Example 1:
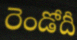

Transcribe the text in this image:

రెండోదీ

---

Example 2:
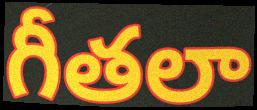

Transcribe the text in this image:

గీతలా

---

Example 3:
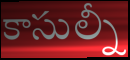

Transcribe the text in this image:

కాసుల్నీ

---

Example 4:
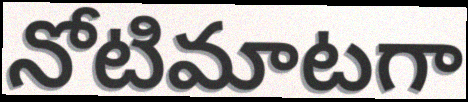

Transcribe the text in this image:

నోటిమాటగా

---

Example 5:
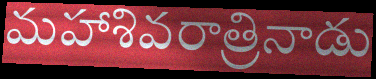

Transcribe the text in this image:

మహాశివరాత్రినాడు